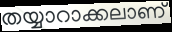
തയ്യാറാക്കലാണ്